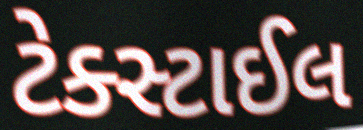
ટેક્સ્ટાઈલ